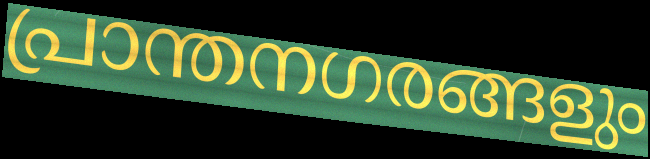
പ്രാന്തനഗരങ്ങളും